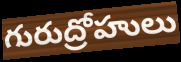
గురుద్రోహులు